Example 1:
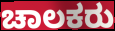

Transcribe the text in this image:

ಚಾಲಕರು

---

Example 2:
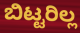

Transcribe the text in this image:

ಬಿಟ್ಟರಿಲ್ಲ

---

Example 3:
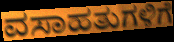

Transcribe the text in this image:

ವಸಾಹತುಗಳಿಗೆ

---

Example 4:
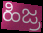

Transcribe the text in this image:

ಹಿಜ್ರ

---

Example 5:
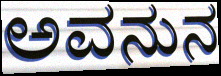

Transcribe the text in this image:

ಅವನುನ